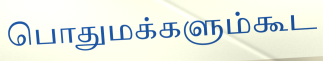
பொதுமக்களும்கூட